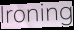
Ironing